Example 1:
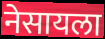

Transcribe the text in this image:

नेसायला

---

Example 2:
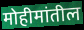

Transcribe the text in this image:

मोहीमांतील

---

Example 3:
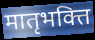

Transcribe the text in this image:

मातृभक्ति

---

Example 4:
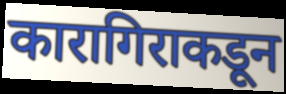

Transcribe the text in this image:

कारागिराकडून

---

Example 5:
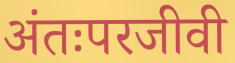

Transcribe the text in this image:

अंतःपरजीवी